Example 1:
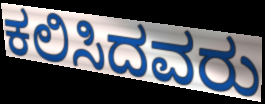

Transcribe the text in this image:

ಕಲಿಸಿದವರು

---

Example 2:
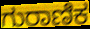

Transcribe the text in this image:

ಗುರಾಣಿಕ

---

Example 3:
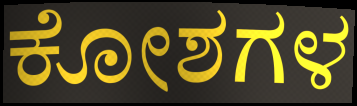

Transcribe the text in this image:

ಕೋಶಗಳ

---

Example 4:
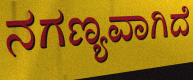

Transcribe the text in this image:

ನಗಣ್ಯವಾಗಿದೆ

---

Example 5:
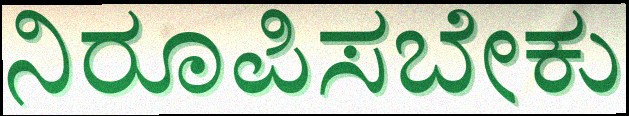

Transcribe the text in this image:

ನಿರೂಪಿಸಬೇಕು